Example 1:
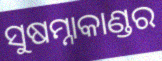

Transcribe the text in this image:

ସୁଷମ୍ନାକାଣ୍ଡର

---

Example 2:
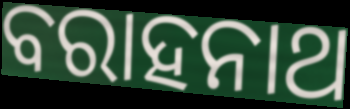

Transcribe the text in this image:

ବରାହନାଥ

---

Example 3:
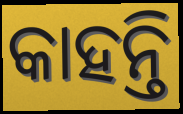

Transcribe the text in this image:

କାହନ୍ତି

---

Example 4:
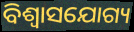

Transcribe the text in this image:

ବିଶ୍ବାସଯୋଗ୍ୟ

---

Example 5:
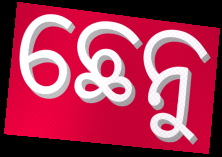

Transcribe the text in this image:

ଛେନୁ